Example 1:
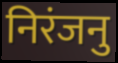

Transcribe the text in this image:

निरंजनु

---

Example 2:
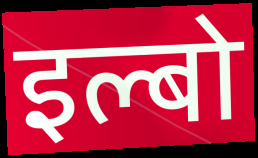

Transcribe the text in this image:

इल्बो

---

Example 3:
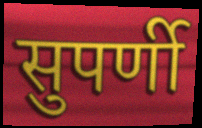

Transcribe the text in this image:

सुपर्णी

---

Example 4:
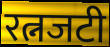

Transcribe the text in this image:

रत्नजटी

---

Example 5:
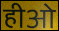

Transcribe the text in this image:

हीओ